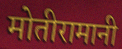
मोतीरामानी